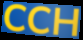
CCH